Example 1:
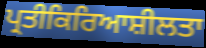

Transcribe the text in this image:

ਪ੍ਰਤੀਕਿਰਿਆਸ਼ੀਲਤਾ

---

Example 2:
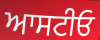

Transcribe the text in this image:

ਆਸਟੀਓ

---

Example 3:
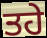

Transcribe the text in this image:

ਤਹੇ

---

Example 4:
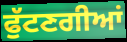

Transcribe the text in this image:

ਫੁੱਟਣਗੀਆਂ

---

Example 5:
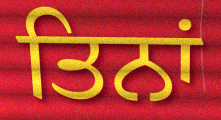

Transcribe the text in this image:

ਤਿਨਾਂ